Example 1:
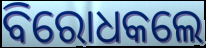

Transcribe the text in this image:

ବିରୋଧକଲେ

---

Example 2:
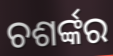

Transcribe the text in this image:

ଚଶର୍ଙ୍କର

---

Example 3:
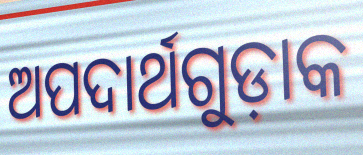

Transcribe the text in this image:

ଅପଦାର୍ଥଗୁଡ଼ାକ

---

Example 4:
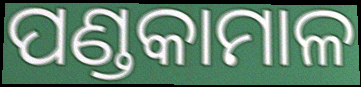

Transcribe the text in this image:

ପଣ୍ଡକାମାଳ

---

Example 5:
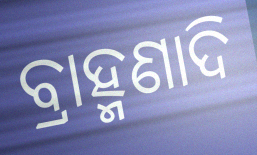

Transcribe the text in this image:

ବ୍ରାହ୍ମଣାଦି